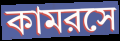
কামরসে